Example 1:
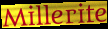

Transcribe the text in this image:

Millerite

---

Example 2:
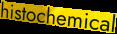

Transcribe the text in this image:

histochemical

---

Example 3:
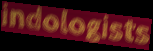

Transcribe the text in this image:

indologists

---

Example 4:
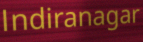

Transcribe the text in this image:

Indiranagar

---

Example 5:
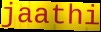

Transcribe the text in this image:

jaathi